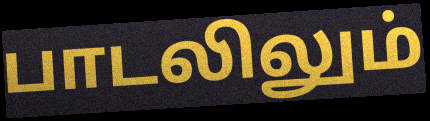
பாடலிலும்